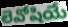
లెవోషియే